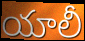
యాలీ